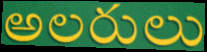
అలరులు